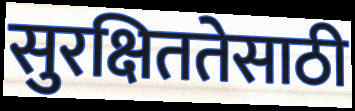
सुरक्षिततेसाठी